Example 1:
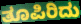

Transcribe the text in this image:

ತೂಪಿರಿದು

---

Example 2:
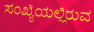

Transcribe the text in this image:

ಸಂಖ್ಯೆಯಲ್ಲಿರುವ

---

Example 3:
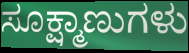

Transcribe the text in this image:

ಸೂಕ್ಷ್ಮಾಣುಗಳು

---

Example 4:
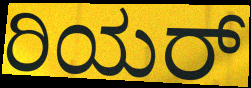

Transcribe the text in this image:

ರಿಯರ್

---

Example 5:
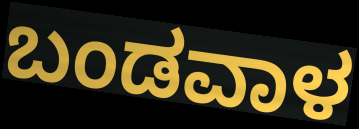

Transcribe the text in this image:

ಬಂಡವಾಳ